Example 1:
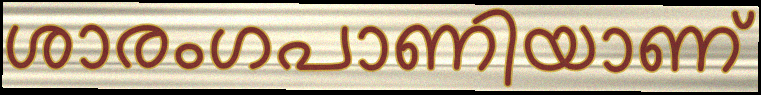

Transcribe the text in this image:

ശാരംഗപാണിയാണ്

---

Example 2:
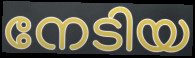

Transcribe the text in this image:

നേടിയ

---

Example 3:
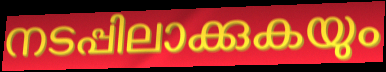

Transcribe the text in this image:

നടപ്പിലാക്കുകയും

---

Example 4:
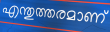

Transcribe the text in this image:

എന്തുത്തരമാണ്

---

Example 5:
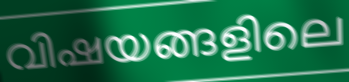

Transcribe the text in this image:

വിഷയങ്ങളിലെ